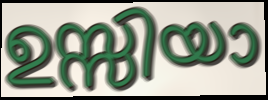
ഉസ്സിയാ